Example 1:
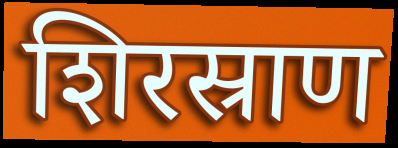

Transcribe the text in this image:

शिरस्राण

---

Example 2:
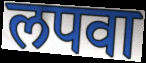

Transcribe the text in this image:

लपवा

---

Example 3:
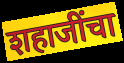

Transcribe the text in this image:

शहाजींचा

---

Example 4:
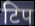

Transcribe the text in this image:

टिप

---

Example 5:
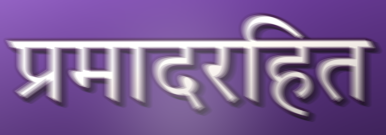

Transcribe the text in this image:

प्रमादरहित